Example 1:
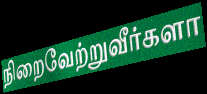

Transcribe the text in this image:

நிறைவேற்றுவீர்களா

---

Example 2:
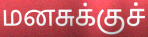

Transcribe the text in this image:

மனசுக்குச்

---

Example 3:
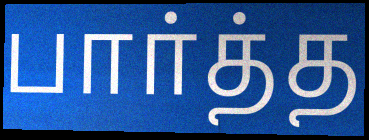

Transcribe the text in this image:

பார்த்த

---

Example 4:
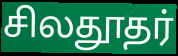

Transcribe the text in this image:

சிலதூதர்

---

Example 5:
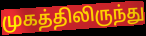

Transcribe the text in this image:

முகத்திலிருந்து